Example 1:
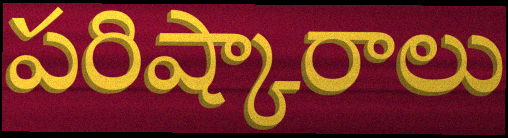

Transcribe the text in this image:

పరిష్కారాలు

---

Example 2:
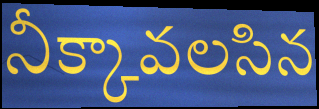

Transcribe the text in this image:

నీక్కావలసిన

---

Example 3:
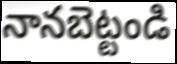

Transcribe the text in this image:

నానబెట్టండి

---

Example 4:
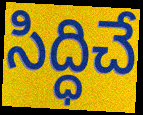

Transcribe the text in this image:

సిద్ధిచే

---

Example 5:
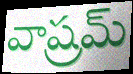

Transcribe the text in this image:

వాష్రమ్